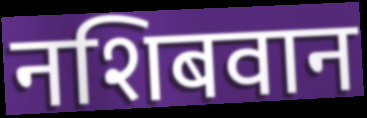
नशिबवान